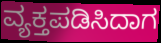
ವ್ಯಕ್ತಪಡಿಸಿದಾಗ